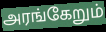
அரங்கேறும்